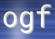
ogf